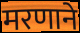
मरणाने